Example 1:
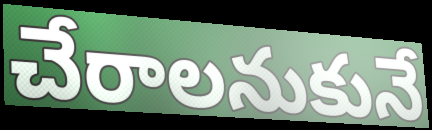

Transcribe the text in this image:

చేరాలనుకునే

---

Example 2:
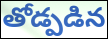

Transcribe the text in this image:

తోడ్పడిన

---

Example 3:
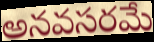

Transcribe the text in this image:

అనవసరమే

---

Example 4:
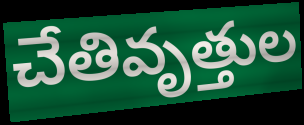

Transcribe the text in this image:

చేతివృత్తుల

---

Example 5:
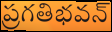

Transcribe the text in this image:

ప్రగతిభవన్